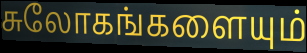
சுலோகங்களையும்